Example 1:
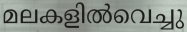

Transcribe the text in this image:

മലകളിൽവെച്ചു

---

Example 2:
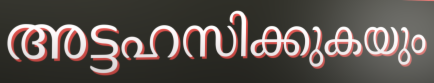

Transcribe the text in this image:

അട്ടഹസിക്കുകയും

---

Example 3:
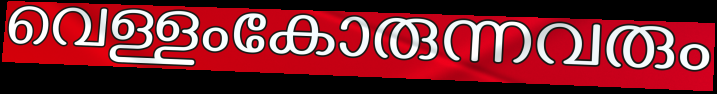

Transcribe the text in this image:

വെള്ളംകോരുന്നവരും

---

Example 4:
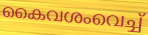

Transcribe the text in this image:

കൈവശംവെച്ച്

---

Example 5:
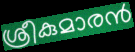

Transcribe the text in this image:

ശ്രീകുമാരൻ